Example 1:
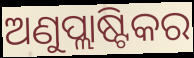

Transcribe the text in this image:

ଅଣୁପ୍ଲାଷ୍ଟିକର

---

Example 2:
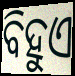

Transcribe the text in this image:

ବିହୁଏ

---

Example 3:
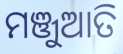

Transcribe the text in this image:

ମଞ୍ଜୁଆତି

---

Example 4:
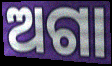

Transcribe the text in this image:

ଅଗା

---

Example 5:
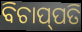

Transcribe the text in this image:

ବିଚାପ୍‌ପତି